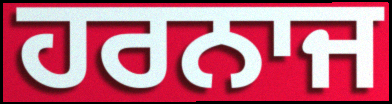
ਹਰਨਾਜ